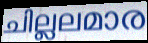
ചില്ലലമാര